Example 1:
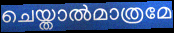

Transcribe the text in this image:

ചെയ്താൽമാത്രമേ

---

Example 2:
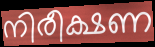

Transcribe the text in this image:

നിരീക്ഷണ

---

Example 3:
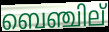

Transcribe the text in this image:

ബെഞ്ചില്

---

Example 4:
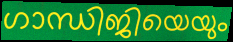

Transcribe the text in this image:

ഗാന്ധിജിയെയും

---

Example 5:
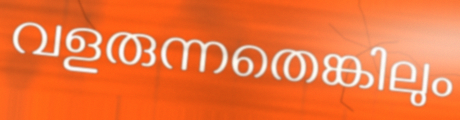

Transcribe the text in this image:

വളരുന്നതെങ്കിലും